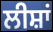
ਲੀਸ਼ਾਂ